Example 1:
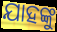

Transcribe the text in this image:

ଯାହଙ୍କୁ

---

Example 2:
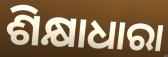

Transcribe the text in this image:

ଶିକ୍ଷାଧାରା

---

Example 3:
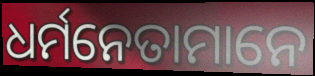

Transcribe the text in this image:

ଧର୍ମନେତାମାନେ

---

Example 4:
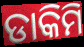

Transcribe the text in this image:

ଡାକିମି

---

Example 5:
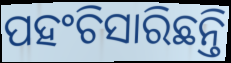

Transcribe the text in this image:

ପହଂଚିସାରିଛନ୍ତି